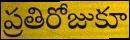
ప్రతిరోజుకూ